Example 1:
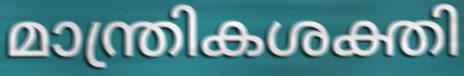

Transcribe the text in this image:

മാന്ത്രികശക്തി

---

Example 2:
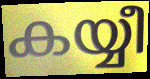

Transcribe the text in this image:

കയ്യീ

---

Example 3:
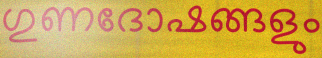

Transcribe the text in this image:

ഗുണദോഷങ്ങളും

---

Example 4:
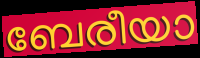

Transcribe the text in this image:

ബേരീയാ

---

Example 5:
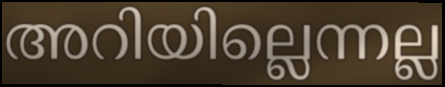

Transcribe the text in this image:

അറിയില്ലെന്നല്ല